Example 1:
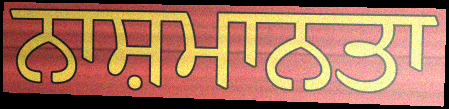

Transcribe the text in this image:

ਨਾਸ਼ਮਾਨਤਾ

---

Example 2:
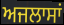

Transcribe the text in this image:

ਅਜਲਾਸਾਂ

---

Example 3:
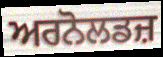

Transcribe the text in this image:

ਅਰਨੋਲਡਜ਼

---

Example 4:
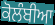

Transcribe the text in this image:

ਕੋਲੰਬੀਆ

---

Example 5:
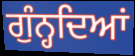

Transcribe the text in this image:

ਗੁੰਨ੍ਹਦਿਆਂ